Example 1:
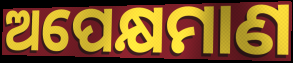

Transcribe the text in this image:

ଅପେକ୍ଷମାଣ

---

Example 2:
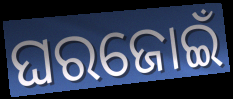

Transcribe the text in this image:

ଘରଜୋଇଁ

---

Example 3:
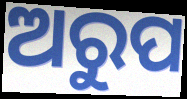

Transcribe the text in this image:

ଅରୁପ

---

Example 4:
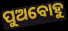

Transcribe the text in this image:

ପୁଅବୋହୁ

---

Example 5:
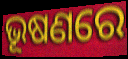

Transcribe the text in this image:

ଭୂଷଣରେ